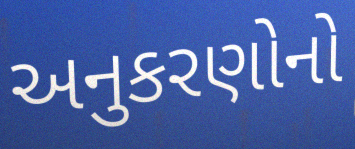
અનુકરણોનો